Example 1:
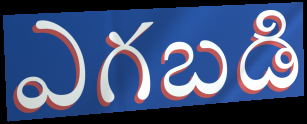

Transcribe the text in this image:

ఎగబడి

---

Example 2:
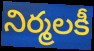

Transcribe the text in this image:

నిర్మలకీ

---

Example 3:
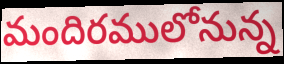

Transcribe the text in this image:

మందిరములోనున్న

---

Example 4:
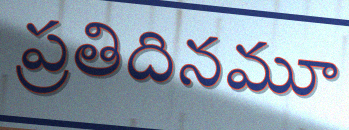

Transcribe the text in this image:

ప్రతిదినమూ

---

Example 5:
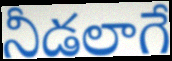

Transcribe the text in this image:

నీడలాగే